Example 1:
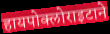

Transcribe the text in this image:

हायपोक्लोराइटाने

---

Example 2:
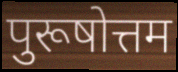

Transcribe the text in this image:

पुरूषोत्तम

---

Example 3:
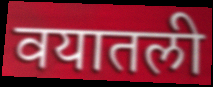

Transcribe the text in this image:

वयातली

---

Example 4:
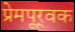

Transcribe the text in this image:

प्रेमपूर्वक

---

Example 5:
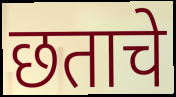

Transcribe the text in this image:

छताचे